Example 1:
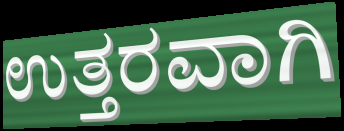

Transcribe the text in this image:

ಉತ್ತರವಾಗಿ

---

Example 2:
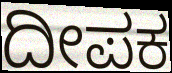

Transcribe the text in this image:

ದೀಪಕ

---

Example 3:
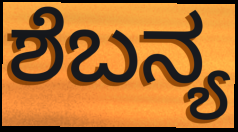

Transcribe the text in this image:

ಶೆಬನ್ಯ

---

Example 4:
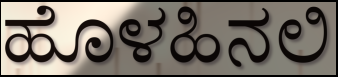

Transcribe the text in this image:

ಹೊಳಹಿನಲಿ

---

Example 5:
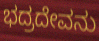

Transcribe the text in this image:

ಭದ್ರದೇವನು